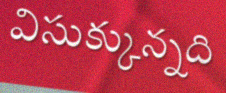
విసుక్కున్నది